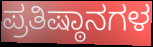
ಪ್ರತಿಷ್ಠಾನಗಳ